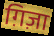
ग़िज़ा